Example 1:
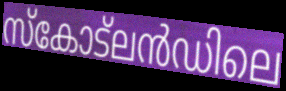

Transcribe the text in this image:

സ്കോട്ലൻഡിലെ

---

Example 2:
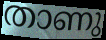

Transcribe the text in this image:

താണു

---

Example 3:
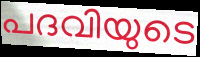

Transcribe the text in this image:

പദവിയുടെ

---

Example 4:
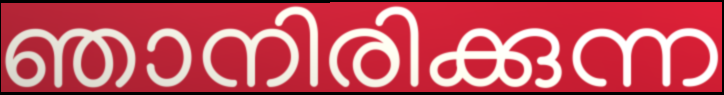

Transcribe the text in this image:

ഞാനിരിക്കുന്ന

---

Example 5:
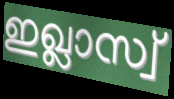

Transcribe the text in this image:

ഇഖ്ലാസ്വ്